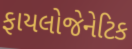
ફાયલોજેનેટિક